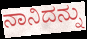
ನಾನಿದನ್ನು